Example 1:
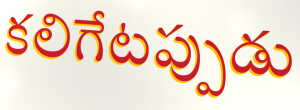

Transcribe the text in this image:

కలిగేటప్పుడు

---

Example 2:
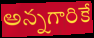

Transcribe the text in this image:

అన్నగారికే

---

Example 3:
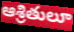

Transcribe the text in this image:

ఆశ్రితులూ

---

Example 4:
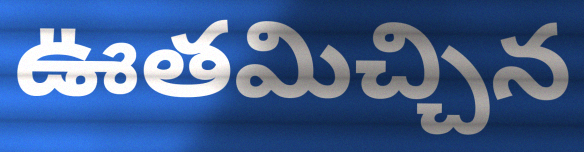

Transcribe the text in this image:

ఊతమిచ్చిన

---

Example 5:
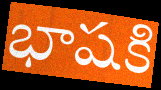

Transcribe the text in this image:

భాషకి